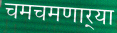
चमचमणार्या